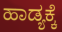
ಹಾಡ್ಯಕ್ಕೆ